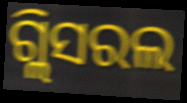
ଗ୍ଲିସରଲ